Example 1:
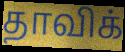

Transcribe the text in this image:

தாவிக்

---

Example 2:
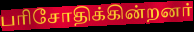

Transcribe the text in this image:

பரிசோதிக்கின்றனர்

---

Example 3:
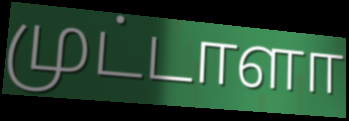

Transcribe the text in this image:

முட்டாளா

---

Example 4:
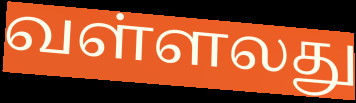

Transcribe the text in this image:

வள்ளலது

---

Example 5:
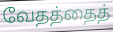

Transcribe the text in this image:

வேதத்தைத்